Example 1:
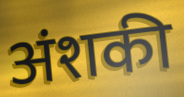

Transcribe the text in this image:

अंशकी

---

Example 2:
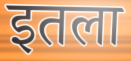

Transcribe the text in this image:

इतला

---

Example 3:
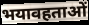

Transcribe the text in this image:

भयावहताओं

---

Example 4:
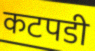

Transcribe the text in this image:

कटपडी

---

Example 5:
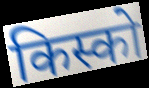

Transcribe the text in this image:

किस्को